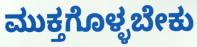
ಮುಕ್ತಗೊಳ್ಳಬೇಕು